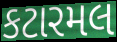
કટારમલ